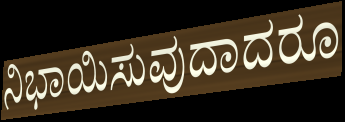
ನಿಭಾಯಿಸುವುದಾದರೂ